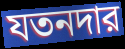
যতনদার